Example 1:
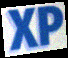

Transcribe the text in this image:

XP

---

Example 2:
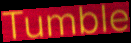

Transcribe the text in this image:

Tumble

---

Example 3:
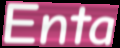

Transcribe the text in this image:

Enta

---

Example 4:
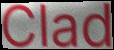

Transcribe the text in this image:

Clad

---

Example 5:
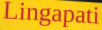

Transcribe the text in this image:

Lingapati